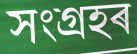
সংগ্ৰহৰ